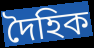
দৈহিক